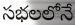
సభలలోనే